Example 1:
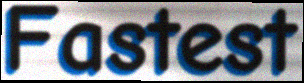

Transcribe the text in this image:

Fastest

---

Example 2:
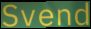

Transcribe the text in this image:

Svend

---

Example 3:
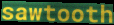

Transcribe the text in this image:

sawtooth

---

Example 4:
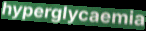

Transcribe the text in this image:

hyperglycaemia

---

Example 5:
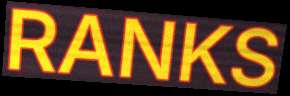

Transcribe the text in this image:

RANKS